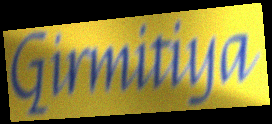
Girmitiya